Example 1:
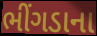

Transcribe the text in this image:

ભીંગડાના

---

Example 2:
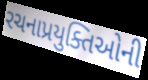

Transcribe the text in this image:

રચનાપ્રયુક્તિઓની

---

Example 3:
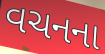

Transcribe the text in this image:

વચનના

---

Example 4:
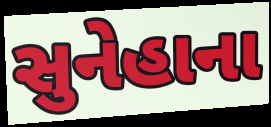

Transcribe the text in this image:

સુનેહાના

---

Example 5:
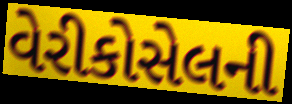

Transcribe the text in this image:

વેરીકોસેલની